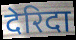
देरिदा